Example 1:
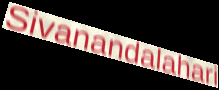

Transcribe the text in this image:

Sivanandalahari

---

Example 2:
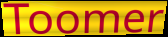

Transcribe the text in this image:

Toomer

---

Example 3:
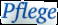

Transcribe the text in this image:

Pflege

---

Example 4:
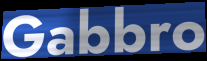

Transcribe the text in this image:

Gabbro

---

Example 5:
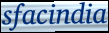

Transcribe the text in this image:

sfacindia